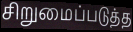
சிறுமைப்படுத்த